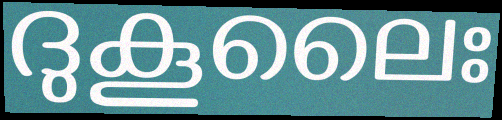
ദുകൂലൈഃ